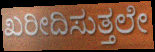
ಖರೀದಿಸುತ್ತಲೇ